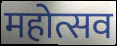
महोत्सव